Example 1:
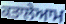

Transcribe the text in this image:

ਕਤਾਲੇਆਮ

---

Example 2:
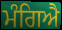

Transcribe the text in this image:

ਮੰਗਿਐ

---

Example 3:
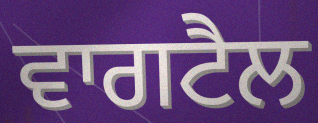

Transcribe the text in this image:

ਵਾਗਟੈਲ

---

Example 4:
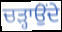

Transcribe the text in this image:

ਚੜ੍ਹਾਉਂਦੇ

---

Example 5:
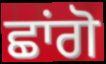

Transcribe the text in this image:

ਛਾਂਗੋ